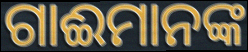
ଗାଈମାନଙ୍କ